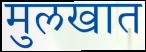
मुलखात